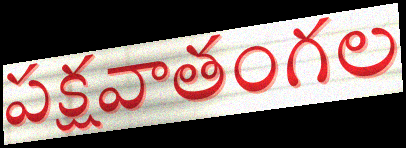
పక్షవాతంగల